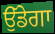
ਉੱਡੇਗਾ